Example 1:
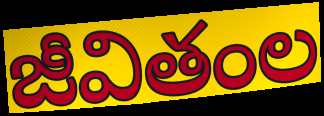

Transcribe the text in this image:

జీవితంల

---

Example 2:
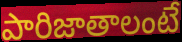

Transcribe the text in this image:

పారిజాతాలంటే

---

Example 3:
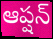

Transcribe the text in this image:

ఆప్షన్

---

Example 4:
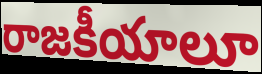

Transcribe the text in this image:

రాజకీయాలూ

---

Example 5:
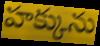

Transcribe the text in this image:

హక్కును